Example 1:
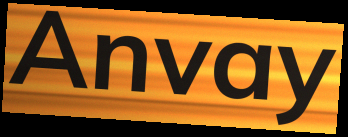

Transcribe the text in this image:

Anvay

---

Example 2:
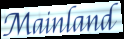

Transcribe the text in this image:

Mainland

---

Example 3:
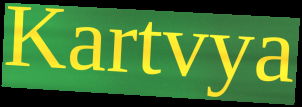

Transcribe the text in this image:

Kartvya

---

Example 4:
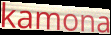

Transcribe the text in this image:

kamona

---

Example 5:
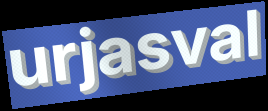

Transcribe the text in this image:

urjasval